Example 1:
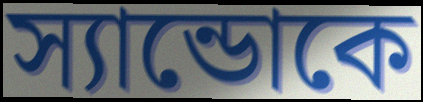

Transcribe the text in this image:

স্যান্ডোকে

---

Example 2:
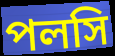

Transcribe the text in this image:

পলসি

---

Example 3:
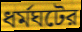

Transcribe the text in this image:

ধর্মঘটের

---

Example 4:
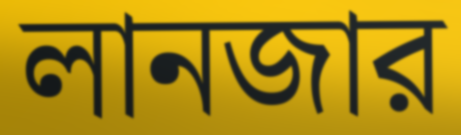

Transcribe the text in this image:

লানজার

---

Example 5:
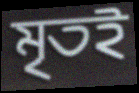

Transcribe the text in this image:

মৃতই